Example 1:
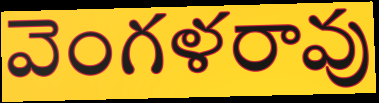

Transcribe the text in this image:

వెంగళరావు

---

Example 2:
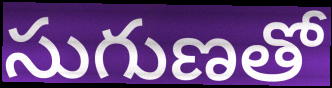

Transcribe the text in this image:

సుగుణతో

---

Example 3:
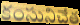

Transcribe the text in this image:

కంసునిచేత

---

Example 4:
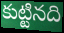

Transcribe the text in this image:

కుట్టినది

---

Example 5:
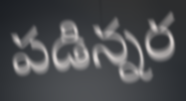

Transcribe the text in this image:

పడిన్నర